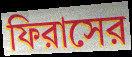
ফিরাসের